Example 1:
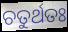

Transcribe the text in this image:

ଚତୁର୍ଥତଃ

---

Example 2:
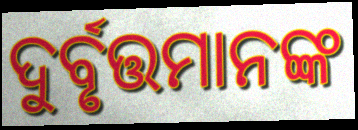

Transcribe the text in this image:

ଦୁର୍ବୃତ୍ତମାନଙ୍କ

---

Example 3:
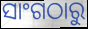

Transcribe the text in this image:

ସାଂଗଠାରୁ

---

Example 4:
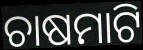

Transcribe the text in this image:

ଚାଷମାଟି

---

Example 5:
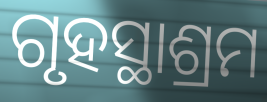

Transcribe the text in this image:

ଗୃହସ୍ଥାଶ୍ରମ